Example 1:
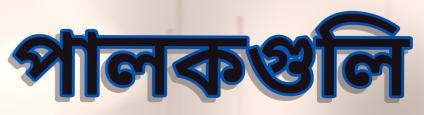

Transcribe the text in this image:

পালকগুলি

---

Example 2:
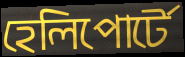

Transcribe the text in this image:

হেলিপোর্টে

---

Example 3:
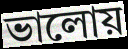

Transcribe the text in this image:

ভালোয়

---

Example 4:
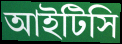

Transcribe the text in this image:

আইটিসি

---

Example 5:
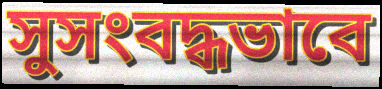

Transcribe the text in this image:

সুসংবদ্ধভাবে